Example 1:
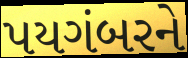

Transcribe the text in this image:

પયગંબરને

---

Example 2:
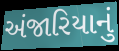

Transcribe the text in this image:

અંજારિયાનું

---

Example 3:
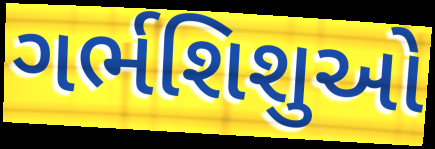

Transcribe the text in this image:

ગર્ભશિશુઓ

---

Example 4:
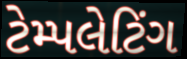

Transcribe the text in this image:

ટેમ્પલેટિંગ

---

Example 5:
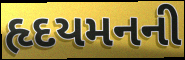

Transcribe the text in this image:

હૃદયમનની